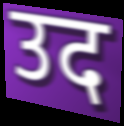
उद